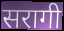
सरागी